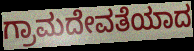
ಗ್ರಾಮದೇವತೆಯಾದ